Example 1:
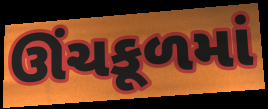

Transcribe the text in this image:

ઊંચકૂળમાં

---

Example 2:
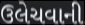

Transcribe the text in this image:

ઉલેચવાની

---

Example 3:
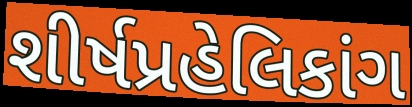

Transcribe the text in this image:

શીર્ષપ્રહેલિકાંગ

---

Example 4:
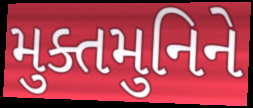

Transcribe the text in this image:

મુક્તમુનિને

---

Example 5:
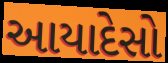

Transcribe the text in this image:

આયાદેસો